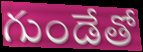
గుండేతో